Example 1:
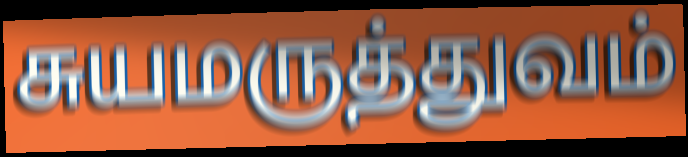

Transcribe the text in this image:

சுயமருத்துவம்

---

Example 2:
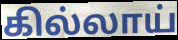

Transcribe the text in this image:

கில்லாய்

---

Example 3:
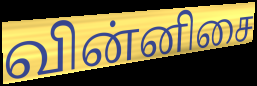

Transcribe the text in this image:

வின்னிசை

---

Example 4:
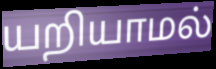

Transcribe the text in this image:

யறியாமல்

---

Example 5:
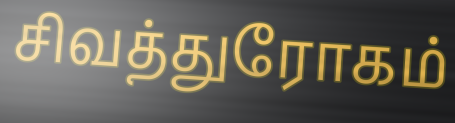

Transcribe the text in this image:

சிவத்துரோகம்